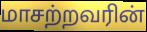
மாசற்றவரின்